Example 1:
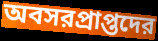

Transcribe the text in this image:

অবসরপ্রাপ্তদের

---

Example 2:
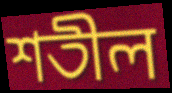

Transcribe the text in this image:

শতীল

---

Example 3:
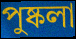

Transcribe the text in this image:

পুষ্কলা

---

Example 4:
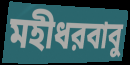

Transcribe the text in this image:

মহীধরবাবু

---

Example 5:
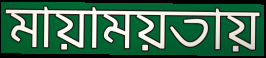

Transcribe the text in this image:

মায়াময়তায়